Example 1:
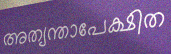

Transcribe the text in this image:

അത്യന്താപേക്ഷിത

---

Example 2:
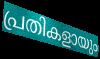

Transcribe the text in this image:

പ്രതികളായും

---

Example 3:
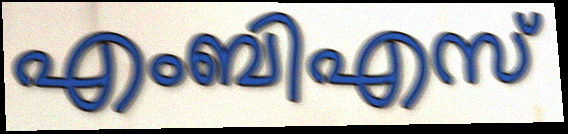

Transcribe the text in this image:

എംബിഎസ്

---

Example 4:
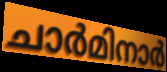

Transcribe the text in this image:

ചാർമിനാർ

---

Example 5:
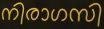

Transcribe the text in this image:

നിരാഗസി